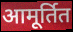
आमूर्तित